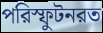
পরিস্ফুটনরত